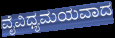
ವೈವಿಧ್ಯಮಯವಾದ